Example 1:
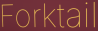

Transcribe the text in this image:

Forktail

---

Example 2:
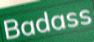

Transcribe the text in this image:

Badass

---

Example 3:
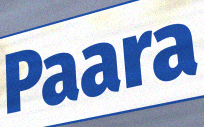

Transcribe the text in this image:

Paara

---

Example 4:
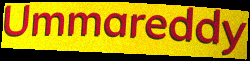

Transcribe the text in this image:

Ummareddy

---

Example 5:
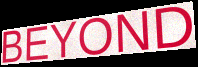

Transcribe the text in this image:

BEYOND